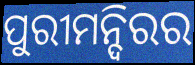
ପୁରୀମନ୍ଦିରର